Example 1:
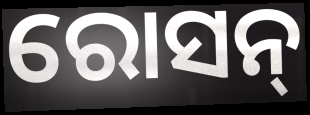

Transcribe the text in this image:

ରୋସନ୍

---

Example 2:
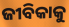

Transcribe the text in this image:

ଜୀବିକାକୁ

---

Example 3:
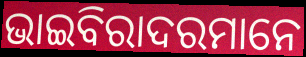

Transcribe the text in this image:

ଭାଇବିରାଦରମାନେ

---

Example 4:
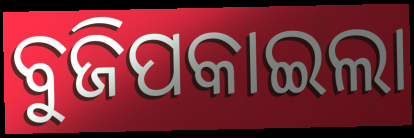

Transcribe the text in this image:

ବୁଜିପକାଇଲା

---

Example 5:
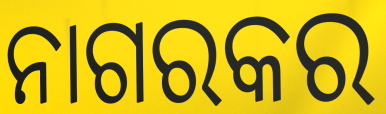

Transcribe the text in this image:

ନାଗରକର